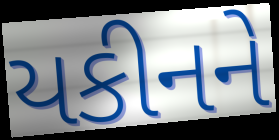
યકીનને